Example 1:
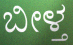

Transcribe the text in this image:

ಬೀಳ್ತ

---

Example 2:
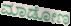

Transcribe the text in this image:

ಮಾಡೋಣ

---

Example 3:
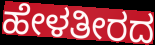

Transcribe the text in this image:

ಹೇಳತೀರದ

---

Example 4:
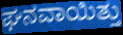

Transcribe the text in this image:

ಘನವಾಯಿತ್ತು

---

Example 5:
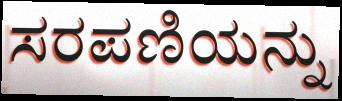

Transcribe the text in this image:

ಸರಪಣಿಯನ್ನು